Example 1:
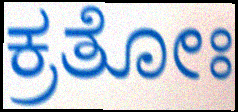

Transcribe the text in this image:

ಕ್ರತೋಃ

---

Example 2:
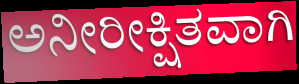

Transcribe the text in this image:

ಅನೀರೀಕ್ಷಿತವಾಗಿ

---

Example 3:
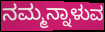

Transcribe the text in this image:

ನಮ್ಮನ್ನಾಳುವ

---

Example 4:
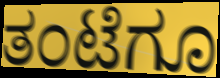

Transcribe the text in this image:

ತಂಟೆಗೂ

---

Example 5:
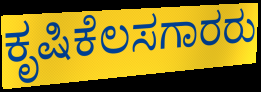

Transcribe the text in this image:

ಕೃಷಿಕೆಲಸಗಾರರು